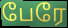
பேரே